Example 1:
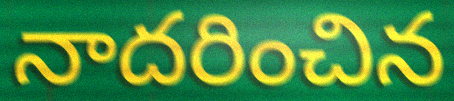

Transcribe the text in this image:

నాదరించిన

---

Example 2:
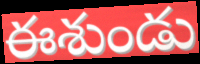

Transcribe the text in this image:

ఈశుండు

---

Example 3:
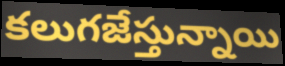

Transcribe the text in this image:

కలుగజేస్తున్నాయి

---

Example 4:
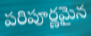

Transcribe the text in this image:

పరిపూర్ణమైన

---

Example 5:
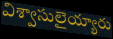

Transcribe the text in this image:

విశ్వాసులైయ్యారు